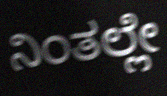
ನಿಂತಲ್ಲೇ